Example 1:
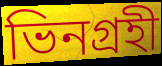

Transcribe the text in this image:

ভিনগ্রহী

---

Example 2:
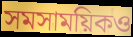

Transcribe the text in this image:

সমসাময়িকও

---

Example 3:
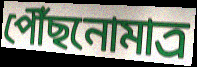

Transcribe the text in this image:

পৌঁছনোমাত্র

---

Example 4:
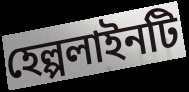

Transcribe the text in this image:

হেল্পলাইনটি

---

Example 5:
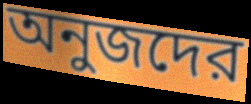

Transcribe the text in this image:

অনুজদের